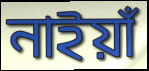
নাইয়াঁ